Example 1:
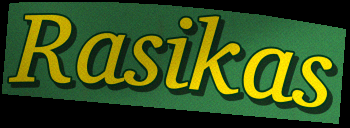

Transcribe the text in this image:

Rasikas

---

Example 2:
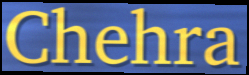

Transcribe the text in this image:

Chehra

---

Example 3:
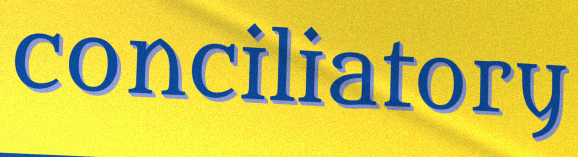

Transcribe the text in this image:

conciliatory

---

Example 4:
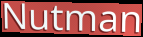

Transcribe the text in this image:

Nutman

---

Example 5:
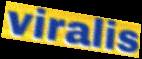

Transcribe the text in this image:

viralis